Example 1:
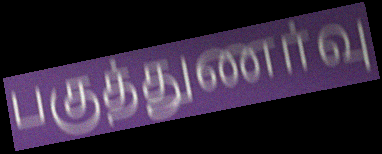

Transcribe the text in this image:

பகுத்துணர்வு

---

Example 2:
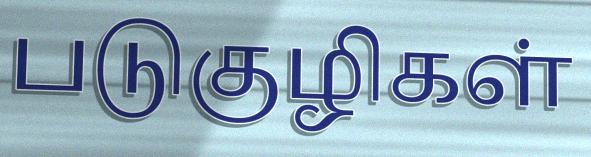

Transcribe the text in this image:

படுகுழிகள்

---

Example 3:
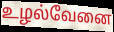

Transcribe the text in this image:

உழல்வேனை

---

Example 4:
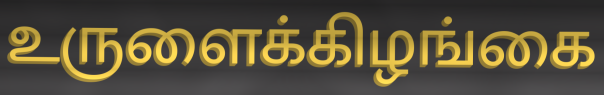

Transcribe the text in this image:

உருளைக்கிழங்கை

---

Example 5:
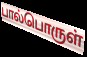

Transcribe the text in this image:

பால்பொருள்